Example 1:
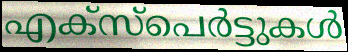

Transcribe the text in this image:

എക്സ്പെർട്ടുകൾ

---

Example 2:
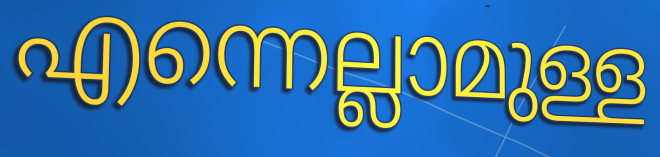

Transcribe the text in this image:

എന്നെല്ലാമുള്ള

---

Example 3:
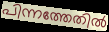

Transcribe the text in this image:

പിന്നത്തേതിൽ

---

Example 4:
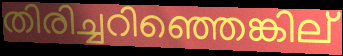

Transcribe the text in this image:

തിരിച്ചറിഞ്ഞെങ്കില്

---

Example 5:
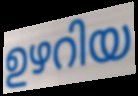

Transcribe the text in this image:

ഉഴറിയ